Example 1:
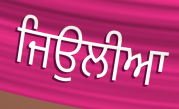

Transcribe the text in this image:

ਜਿਉਲੀਆ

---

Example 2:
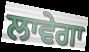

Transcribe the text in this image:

ਲਾਵੇਗਾ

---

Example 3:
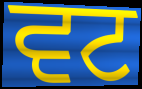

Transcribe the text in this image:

ਵਟ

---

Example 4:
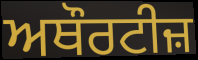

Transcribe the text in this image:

ਅਥੌਰਟੀਜ਼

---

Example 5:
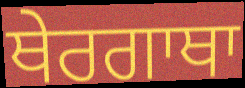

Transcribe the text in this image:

ਥੇਰਗਾਥਾ